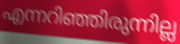
എന്നറിഞ്ഞിരുന്നില്ല